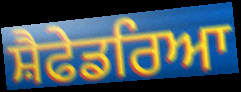
ਸ਼ੈਫੇਡਰਿਆ